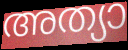
അത്യാ